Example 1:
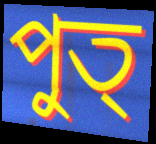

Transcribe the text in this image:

পুত্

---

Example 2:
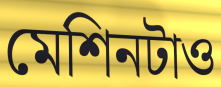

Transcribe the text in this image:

মেশিনটাও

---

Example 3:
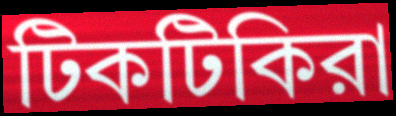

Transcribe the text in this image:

টিকটিকিরা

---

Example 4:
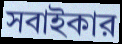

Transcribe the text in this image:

সবাইকার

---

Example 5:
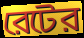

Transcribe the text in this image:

রেটের